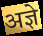
अज्ञे